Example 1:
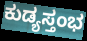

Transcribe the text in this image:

ಕುಡ್ಯಸ್ತಂಭ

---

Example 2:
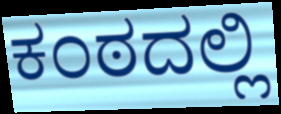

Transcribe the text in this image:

ಕಂಠದಲ್ಲಿ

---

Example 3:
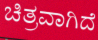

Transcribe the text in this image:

ಚಿತ್ರವಾಗಿದೆ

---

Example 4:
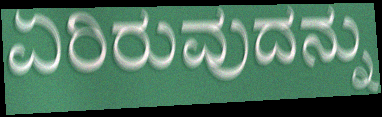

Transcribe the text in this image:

ಏರಿರುವುದನ್ನು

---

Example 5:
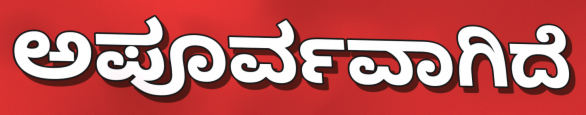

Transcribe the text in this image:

ಅಪೂರ್ವವಾಗಿದೆ